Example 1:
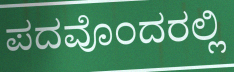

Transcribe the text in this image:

ಪದವೊಂದರಲ್ಲಿ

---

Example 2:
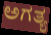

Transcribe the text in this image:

ಅಗತ್ಯ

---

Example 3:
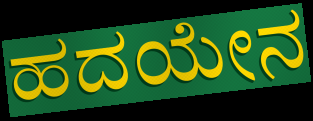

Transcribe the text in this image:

ಹದಯೇನ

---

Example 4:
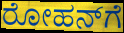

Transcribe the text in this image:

ರೋಹನ್‌ಗೆ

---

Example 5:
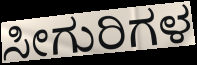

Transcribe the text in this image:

ಸೀಗುರಿಗಳ